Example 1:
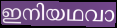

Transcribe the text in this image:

ഇനിയഥവാ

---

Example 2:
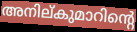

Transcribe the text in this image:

അനില്കുമാറിന്റെ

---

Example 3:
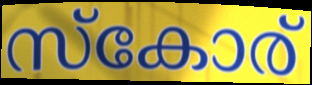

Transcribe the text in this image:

സ്കോര്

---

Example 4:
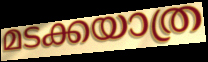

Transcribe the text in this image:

മടക്കയാത്ര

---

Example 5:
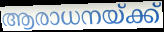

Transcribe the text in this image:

ആരാധനയ്ക്ക്